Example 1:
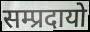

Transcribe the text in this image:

सम्प्रदायो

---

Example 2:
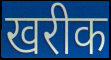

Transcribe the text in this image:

खरीक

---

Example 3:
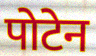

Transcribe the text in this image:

पोटेन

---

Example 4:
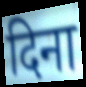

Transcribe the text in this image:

दिना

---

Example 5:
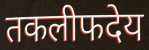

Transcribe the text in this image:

तकलीफदेय